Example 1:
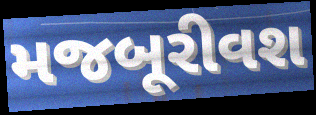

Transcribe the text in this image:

મજબૂરીવશ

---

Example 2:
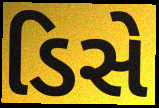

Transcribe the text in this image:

ડિસે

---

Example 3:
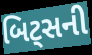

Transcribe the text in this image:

બિટ્સની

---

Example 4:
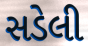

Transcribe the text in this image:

સડેલી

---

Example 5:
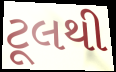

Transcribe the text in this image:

ટૂલથી